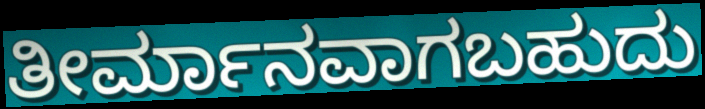
ತೀರ್ಮಾನವಾಗಬಹುದು